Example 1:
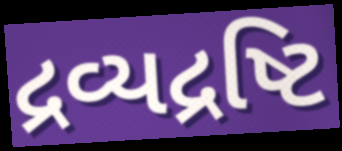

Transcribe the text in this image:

દ્રવ્યદ્રષ્ટિ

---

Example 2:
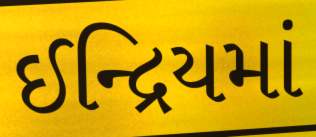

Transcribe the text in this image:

ઈન્દ્રિયમાં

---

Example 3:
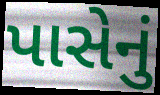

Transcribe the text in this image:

પાસેનું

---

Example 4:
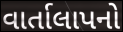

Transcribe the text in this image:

વાર્તાલાપનો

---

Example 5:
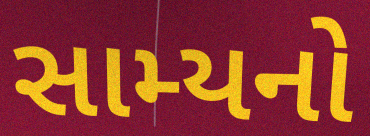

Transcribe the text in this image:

સામ્યનો